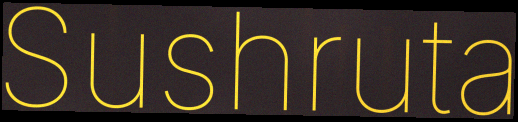
Sushruta